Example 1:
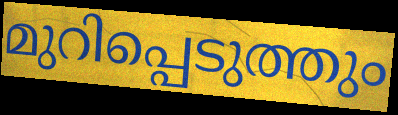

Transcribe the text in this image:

മുറിപ്പെടുത്തും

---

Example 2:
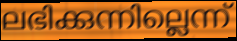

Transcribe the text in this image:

ലഭിക്കുന്നില്ലെന്ന്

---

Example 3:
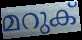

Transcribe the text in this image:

മറുക്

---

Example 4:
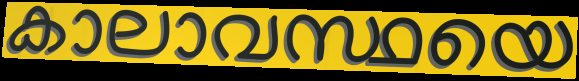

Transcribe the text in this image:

കാലാവസ്ഥയെ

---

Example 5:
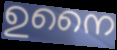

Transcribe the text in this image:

ഉനൈ